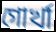
গোর্খা